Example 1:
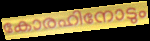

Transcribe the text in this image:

കോരഹിനോടും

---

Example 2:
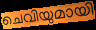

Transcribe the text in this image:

ചെവിയുമായി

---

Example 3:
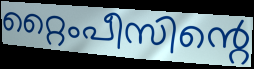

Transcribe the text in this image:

റ്റൈംപീസിന്റെ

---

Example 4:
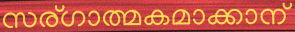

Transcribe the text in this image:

സര്ഗാത്മകമാക്കാന്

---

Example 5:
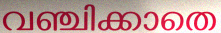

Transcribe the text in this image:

വഞ്ചിക്കാതെ